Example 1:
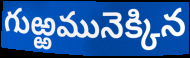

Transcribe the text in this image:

గుఱ్ఱమునెక్కిన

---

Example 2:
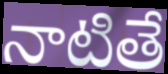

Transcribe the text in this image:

నాటితే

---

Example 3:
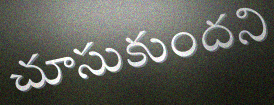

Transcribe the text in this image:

చూసుకుందని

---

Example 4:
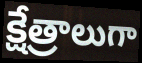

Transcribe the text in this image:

క్షేత్రాలుగా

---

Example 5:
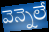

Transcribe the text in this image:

వెన్నెలే